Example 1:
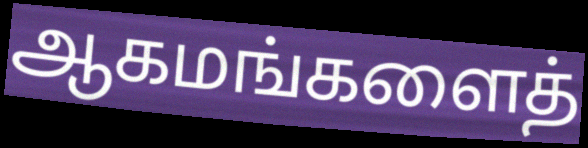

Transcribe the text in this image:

ஆகமங்களைத்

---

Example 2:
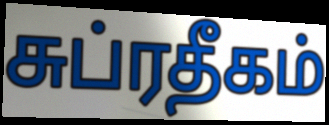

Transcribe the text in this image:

சுப்ரதீகம்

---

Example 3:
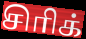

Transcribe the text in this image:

சிரிக்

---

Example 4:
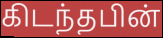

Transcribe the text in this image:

கிடந்தபின்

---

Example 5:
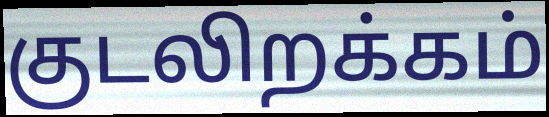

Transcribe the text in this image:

குடலிறக்கம்